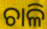
ଚାଳି